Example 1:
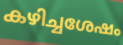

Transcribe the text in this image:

കഴിച്ചശേഷം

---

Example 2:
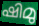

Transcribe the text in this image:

ഷിമു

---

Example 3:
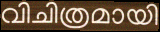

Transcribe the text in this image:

വിചിത്രമായി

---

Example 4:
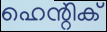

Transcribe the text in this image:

ഹെന്റിക്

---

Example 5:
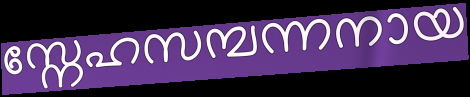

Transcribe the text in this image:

സ്നേഹസമ്പന്നനായ